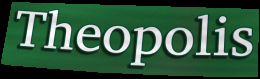
Theopolis